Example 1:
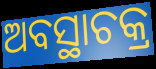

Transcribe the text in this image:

ଅବସ୍ଥାଚକ୍ର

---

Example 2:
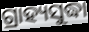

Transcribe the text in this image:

ଗ୍ରାହ୍ୟସୁଦ୍ଧା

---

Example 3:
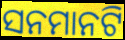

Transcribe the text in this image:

ସନମାନଟି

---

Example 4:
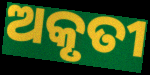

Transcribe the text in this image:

ଅକୃତୀ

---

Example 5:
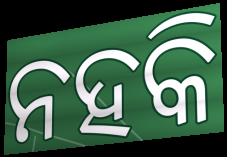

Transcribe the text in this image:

ନହକି